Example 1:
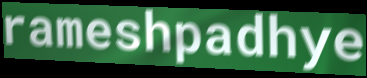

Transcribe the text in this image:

rameshpadhye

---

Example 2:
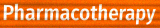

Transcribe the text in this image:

Pharmacotherapy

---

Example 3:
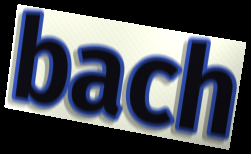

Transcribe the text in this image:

bach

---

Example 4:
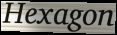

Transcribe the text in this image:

Hexagon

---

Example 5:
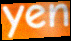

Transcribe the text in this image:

yen